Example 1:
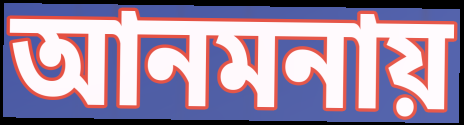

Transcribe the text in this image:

আনমনায়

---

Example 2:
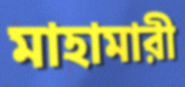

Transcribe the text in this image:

মাহামারী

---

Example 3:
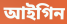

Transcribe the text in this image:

আইগিন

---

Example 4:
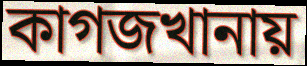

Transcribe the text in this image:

কাগজখানায়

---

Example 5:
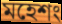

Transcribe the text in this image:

মহেশং